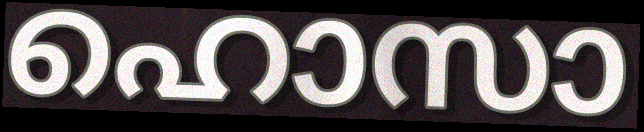
ഹൊസാ